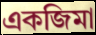
একজিমা